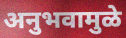
अनुभवामुळे